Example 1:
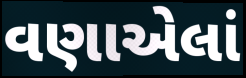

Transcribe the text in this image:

વણાએલાં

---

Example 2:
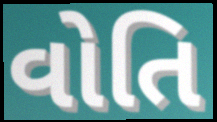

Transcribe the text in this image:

વોતિ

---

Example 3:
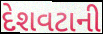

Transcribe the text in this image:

દેશવટાની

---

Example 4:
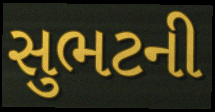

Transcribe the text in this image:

સુભટની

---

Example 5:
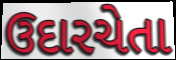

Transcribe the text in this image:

ઉદારચેતા